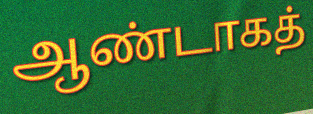
ஆண்டாகத்